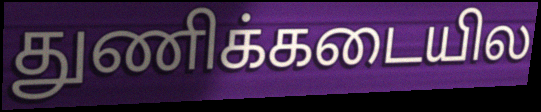
துணிக்கடையில